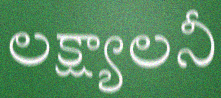
లక్ష్యాలనీ